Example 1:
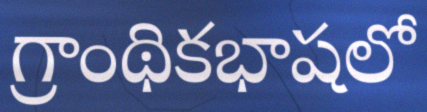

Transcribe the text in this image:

గ్రాంథికభాషలో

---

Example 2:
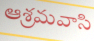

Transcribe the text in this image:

ఆశ్రమవాసి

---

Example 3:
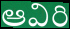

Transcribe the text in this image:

ఆవిరి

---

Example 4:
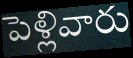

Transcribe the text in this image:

పెళ్లివారు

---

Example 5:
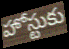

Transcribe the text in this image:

హోస్టుకు